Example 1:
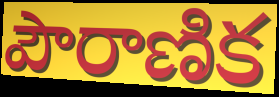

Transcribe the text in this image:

పౌరాణిక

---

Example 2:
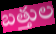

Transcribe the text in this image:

బత్తుల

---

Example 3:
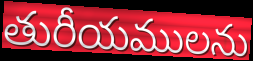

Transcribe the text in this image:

తురీయములను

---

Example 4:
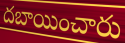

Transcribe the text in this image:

దబాయించారు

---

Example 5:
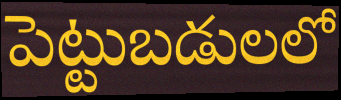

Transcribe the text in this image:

పెట్టుబడులలో